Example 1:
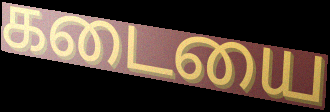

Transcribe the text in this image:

கடையை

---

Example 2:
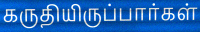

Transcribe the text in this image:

கருதியிருப்பார்கள்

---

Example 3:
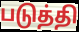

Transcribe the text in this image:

படுத்தி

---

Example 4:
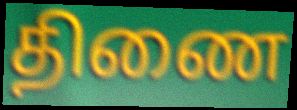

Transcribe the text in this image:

திணை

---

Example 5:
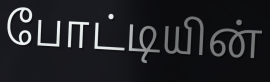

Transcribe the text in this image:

போட்டியின்